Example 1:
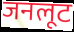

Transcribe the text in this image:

जनलूट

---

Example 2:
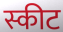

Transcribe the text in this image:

स्‍कीट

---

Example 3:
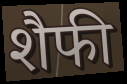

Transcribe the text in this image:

शैफी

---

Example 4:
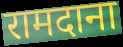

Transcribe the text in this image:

रामदाना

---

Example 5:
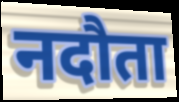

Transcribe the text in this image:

नदौता